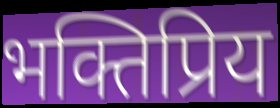
भक्तिप्रिय